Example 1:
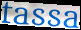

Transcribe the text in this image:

tassa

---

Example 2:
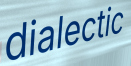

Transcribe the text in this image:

dialectic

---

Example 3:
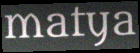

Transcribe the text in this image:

matya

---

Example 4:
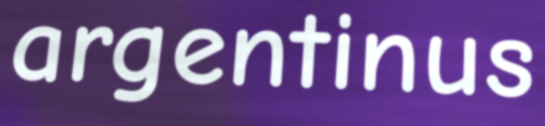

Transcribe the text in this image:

argentinus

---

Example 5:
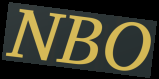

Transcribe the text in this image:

NBO